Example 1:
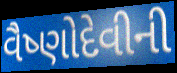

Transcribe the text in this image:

વૈષ્ણોદેવીની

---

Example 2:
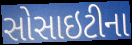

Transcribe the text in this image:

સોસાઇટીના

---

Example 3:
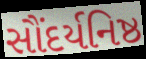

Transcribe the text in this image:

સૌંદર્યનિષ્ઠ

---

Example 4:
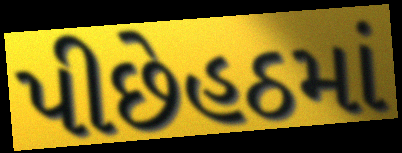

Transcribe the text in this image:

પીછેહઠમાં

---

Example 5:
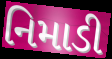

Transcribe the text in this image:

નિમાડી